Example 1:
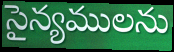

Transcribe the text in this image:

సైన్యములను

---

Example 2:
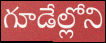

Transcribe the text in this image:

గూడేల్లోని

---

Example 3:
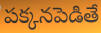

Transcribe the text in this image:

పక్కనపెడితే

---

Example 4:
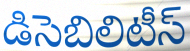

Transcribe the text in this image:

డిసెబిలిటీస్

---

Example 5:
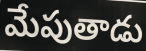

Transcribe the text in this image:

మేపుతాడు